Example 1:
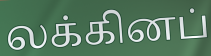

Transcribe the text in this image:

லக்கினப்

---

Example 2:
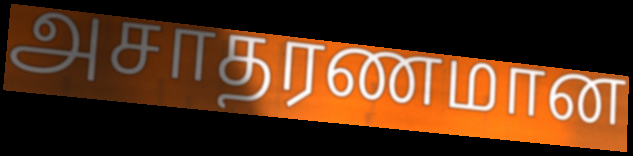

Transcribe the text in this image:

அசாதரணமான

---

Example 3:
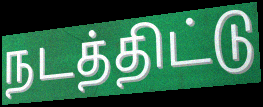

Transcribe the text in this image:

நடத்திட்டு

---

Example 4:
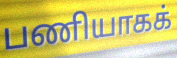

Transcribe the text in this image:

பணியாகக்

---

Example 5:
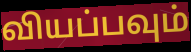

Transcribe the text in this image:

வியப்பவும்